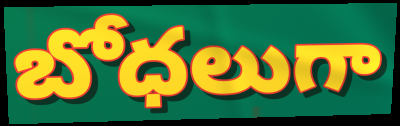
బోధలుగా